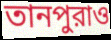
তানপুরাও